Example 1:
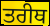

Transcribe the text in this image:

ਤਰੀਥ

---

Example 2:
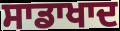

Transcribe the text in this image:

ਸਾਡਾਖਾਦ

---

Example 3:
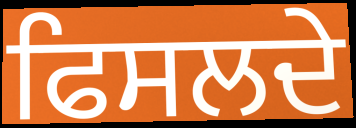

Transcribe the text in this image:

ਫਿਸਲਦੇ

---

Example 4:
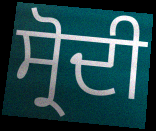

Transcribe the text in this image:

ਸ੍ਰੋਦੀ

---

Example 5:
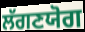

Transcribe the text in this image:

ਲੱਗਣਯੋਗ